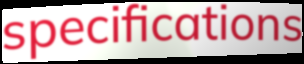
specifications